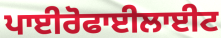
ਪਾਈਰੋਫਾਈਲਾਈਟ